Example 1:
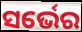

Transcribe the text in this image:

ସର୍ଭେର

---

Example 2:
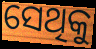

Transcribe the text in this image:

ସେଥିକୁ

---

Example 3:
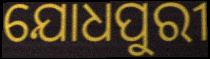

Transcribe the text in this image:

ଯୋଧପୁରୀ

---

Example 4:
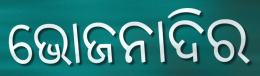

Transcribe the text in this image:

ଭୋଜନାଦିର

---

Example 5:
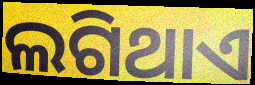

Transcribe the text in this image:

ଲଗିଥାଏ